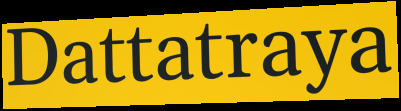
Dattatraya